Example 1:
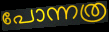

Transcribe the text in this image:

പോന്നത്ര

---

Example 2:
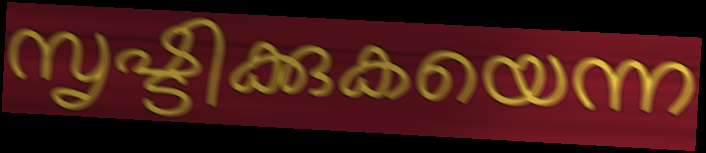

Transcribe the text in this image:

സൃഷ്ടിക്കുകയെന്ന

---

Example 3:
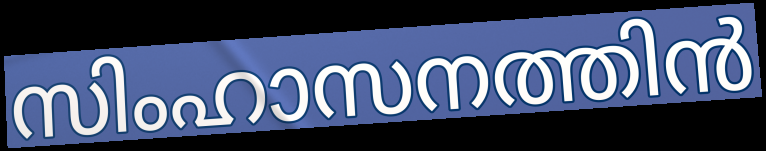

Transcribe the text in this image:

സിംഹാസനത്തിൻ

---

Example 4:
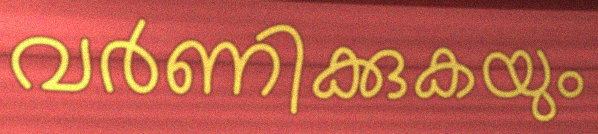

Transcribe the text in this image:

വർണിക്കുകയും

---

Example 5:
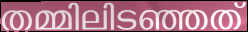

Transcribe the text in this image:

തമ്മിലിടഞ്ഞത്